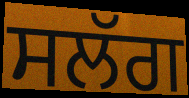
ਸਲੱਗ